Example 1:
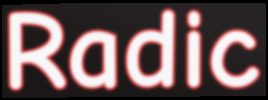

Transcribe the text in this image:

Radic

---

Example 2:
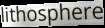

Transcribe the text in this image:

lithosphere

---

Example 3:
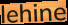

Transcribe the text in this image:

lehine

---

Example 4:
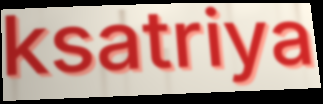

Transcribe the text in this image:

ksatriya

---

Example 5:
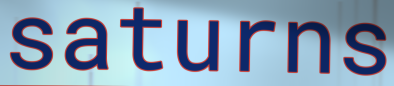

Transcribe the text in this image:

saturns